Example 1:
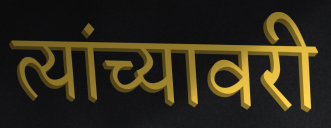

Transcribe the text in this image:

त्यांच्यावरी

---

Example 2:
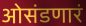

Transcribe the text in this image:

ओसंडणारं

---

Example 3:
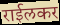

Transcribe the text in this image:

राईलकर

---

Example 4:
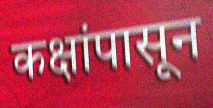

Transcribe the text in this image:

कक्षांपासून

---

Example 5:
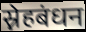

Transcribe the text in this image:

स्नेहबंधन